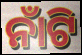
ନାଁଟି